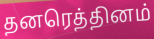
தனரெத்தினம்